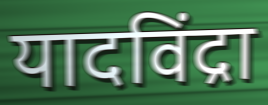
यादविंद्रा